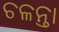
ଚଳନ୍ତା